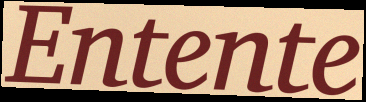
Entente